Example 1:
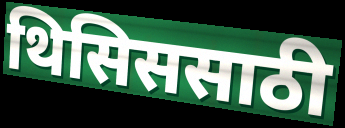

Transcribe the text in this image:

थिसिससाठी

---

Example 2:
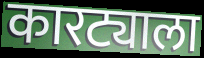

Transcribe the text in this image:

कारट्याला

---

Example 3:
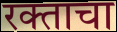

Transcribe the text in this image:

रक्‍ताचा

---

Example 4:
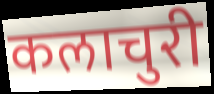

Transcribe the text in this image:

कलाचुरी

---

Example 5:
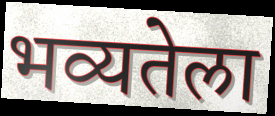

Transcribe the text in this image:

भव्यतेला